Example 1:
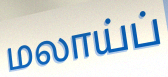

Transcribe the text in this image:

மலாய்ப்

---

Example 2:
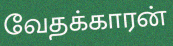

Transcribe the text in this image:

வேதக்காரன்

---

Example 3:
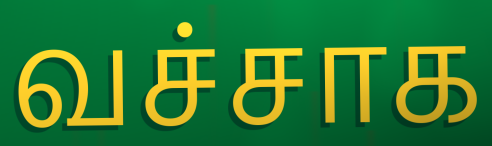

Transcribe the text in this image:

வச்சாக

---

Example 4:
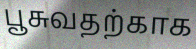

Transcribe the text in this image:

பூசுவதற்காக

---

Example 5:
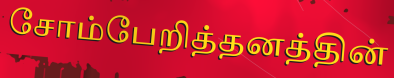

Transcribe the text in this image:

சோம்பேறித்தனத்தின்